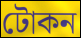
টোকন